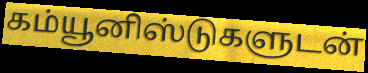
கம்யூனிஸ்டுகளுடன்